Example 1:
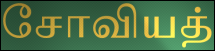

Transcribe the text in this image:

சோவியத்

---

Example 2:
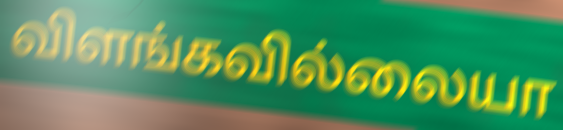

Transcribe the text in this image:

விளங்கவில்லையா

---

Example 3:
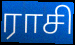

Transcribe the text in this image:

ராசி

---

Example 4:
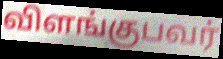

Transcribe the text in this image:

விளங்குபவர்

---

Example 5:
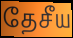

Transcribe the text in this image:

தேசீய